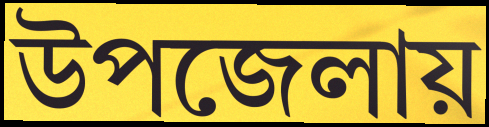
উপজেলায়